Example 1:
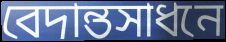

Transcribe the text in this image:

বেদান্তসাধনে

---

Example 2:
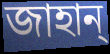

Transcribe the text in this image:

জাহান্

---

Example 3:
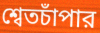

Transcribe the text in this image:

শ্বেতচাঁপার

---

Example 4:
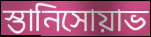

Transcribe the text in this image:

স্তানিসোয়াভ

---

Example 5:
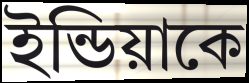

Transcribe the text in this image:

ইন্ডিয়াকে